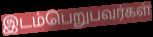
இடம்பெறுபவர்கள்